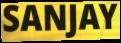
SANJAY